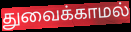
துவைக்காமல்